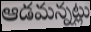
ఆడమన్నట్లు